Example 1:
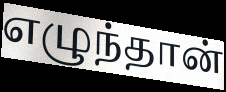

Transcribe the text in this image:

எழுந்தான்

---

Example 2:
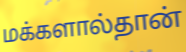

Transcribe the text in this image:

மக்களால்தான்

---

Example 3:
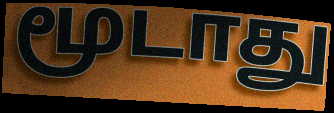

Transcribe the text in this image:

மூடாது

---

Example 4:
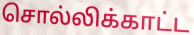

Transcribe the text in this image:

சொல்லிக்காட்ட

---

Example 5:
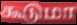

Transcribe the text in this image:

கூடுமா